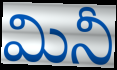
మినీ